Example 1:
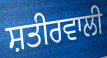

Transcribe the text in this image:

ਸ਼ਤੀਰਵਾਲੀ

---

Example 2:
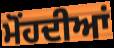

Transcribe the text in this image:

ਮੋਂਹਦੀਆਂ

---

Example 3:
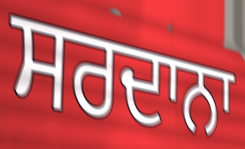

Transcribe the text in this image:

ਸਰਦਾਨਾ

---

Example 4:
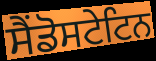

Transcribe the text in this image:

ਸੈਂਡੋਸਟੇਟਿਨ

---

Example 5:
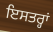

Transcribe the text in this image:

ਇਸਤਰ੍ਹਾਂ